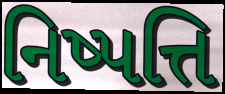
નિષ્પત્તિ